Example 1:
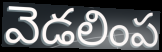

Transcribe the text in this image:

వెడలింప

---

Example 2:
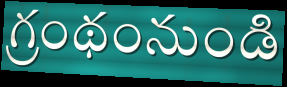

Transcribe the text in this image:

గ్రంథంనుండి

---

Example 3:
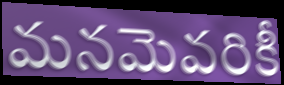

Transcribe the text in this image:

మనమెవరికీ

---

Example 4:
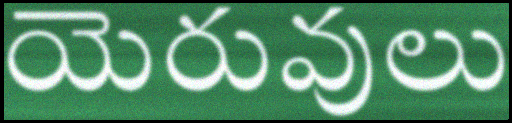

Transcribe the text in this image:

యెరువులు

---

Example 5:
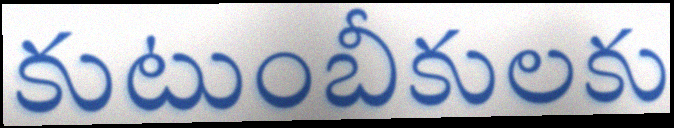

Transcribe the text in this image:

కుటుంబీకులకు